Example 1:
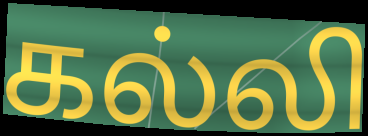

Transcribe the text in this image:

கல்லி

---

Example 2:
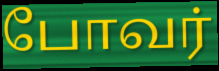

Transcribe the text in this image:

போவர்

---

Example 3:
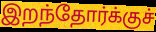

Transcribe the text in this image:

இறந்தோர்க்குச்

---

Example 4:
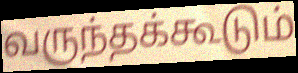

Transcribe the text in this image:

வருந்தக்கூடும்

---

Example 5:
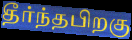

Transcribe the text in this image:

தீர்ந்தபிறகு